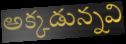
అక్కడున్నవి